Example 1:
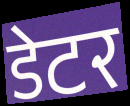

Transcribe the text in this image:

डेटर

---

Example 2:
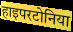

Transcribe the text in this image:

हाइपरटोनिया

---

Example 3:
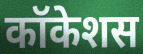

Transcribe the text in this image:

कॉकेशस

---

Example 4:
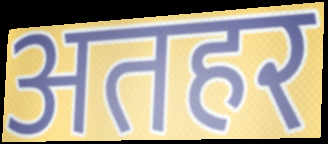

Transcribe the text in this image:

अतहर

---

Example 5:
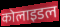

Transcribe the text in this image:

कोलाइडल